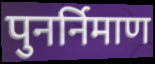
पुनर्निमाण